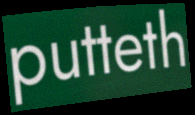
putteth